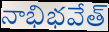
నాభిభవేత్